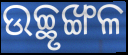
ଉଚ୍ଛୃଙ୍ଖଳ